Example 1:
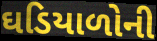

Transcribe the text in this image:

ઘડિયાળોની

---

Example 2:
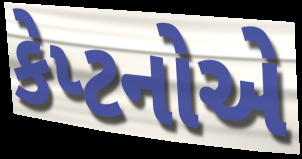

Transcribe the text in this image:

કેપ્ટનોએ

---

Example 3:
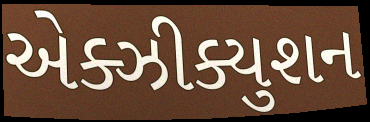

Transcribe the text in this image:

એક્ઝીક્યુશન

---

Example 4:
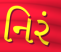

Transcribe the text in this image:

નિરં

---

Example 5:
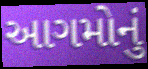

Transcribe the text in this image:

આગમોનું